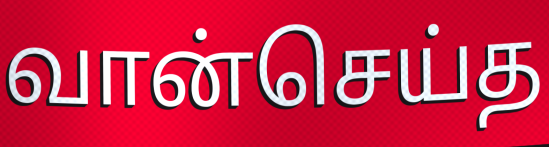
வான்செய்த